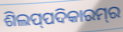
ଶିଲପ୍‍ପଦିକାରମ୍‍ର